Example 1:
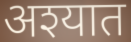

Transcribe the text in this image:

अश्यात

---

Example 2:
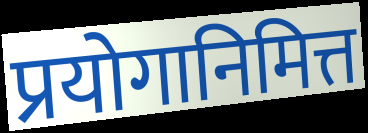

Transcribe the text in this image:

प्रयोगानिमित्त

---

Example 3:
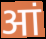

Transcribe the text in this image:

आं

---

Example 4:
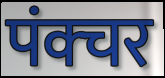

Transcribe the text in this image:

पंक्‍चर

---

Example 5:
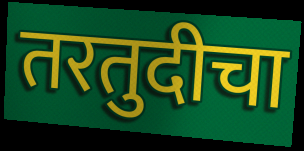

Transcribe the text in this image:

तरतुदीचा